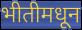
भीतीमधून